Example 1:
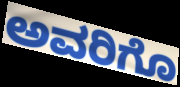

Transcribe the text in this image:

ಅವರಿಗೊ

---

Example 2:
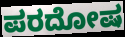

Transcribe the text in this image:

ಪರದೋಷ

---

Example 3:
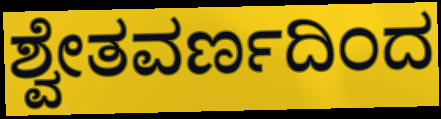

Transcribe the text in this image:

ಶ್ವೇತವರ್ಣದಿಂದ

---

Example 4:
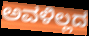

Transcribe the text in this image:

ಅವಳಿಲ್ಲದ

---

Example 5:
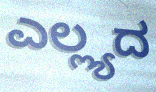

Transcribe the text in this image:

ಎಲ್ಲ್ಯದ